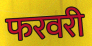
फरवरी